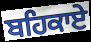
ਬਹਿਕਾਏ